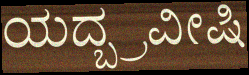
ಯದ್ಬ್ರವೀಷಿ